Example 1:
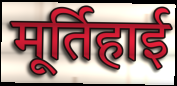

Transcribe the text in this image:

मूर्तिहाई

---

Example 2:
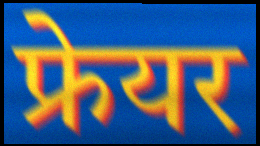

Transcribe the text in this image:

फ्रेयर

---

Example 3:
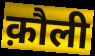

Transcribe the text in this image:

क़ौली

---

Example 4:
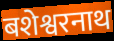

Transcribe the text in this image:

बशेश्वरनाथ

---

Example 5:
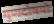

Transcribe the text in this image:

गुणदोषयोः